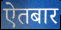
ऐतबार